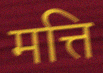
मत्ति